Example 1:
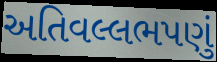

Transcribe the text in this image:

અતિવલ્લભપણું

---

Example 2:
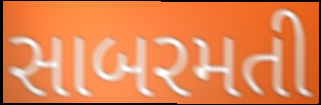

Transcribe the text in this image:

સાબરમતી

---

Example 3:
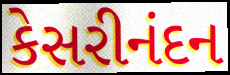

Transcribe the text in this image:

કેસરીનંદન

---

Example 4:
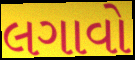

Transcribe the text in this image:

લગાવો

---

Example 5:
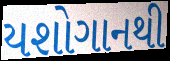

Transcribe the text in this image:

યશોગાનથી